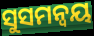
ସୁସମନ୍ଵୟ